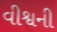
વીશ્વની